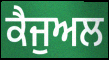
ਕੈਜੁਅਲ